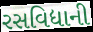
રસવિદ્યાની